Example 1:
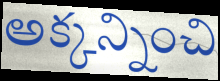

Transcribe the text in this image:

అక్కన్నించి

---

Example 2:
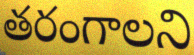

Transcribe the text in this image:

తరంగాలని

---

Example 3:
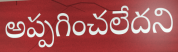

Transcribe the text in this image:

అప్పగించలేదని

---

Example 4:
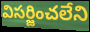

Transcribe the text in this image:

విసర్జించలేని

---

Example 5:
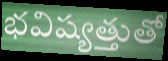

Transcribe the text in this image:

భవిష్యత్తుతో